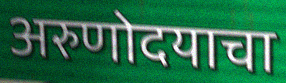
अरुणोदयाचा